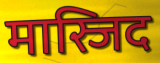
मास्जिद